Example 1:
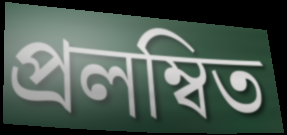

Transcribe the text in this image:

প্রলম্বিত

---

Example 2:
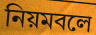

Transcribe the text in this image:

নিয়মবলে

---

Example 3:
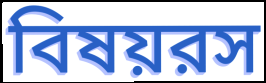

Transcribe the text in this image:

বিষয়রস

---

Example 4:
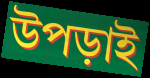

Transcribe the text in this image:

উপড়াই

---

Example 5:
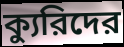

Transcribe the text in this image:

ক্যুরিদের